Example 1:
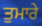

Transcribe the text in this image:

ਤੁਮਾਰੇ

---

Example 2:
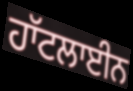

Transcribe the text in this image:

ਹਾੱਟਲਾਈਨ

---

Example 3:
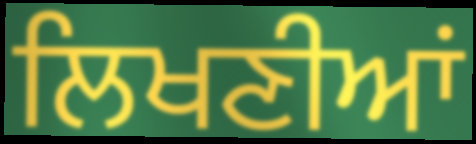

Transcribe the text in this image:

ਲਿਖਣੀਆਂ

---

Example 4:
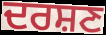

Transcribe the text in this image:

ਦਰਸ਼ਣ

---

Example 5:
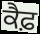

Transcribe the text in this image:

ਕੈਫ਼